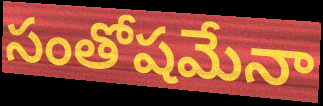
సంతోషమేనా